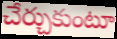
చేర్చుకుంటూ